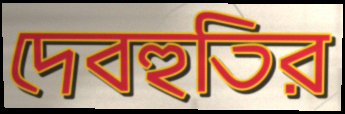
দেবহুতির